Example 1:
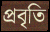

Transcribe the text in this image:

প্রবৃতি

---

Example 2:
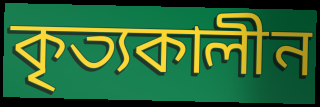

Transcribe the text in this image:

কৃত্যকালীন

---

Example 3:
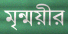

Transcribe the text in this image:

মৃন্ময়ীর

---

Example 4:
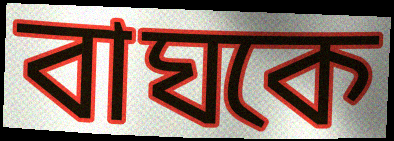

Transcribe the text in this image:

বাঘকে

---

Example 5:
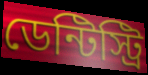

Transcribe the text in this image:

ডেন্টিস্ট্রি